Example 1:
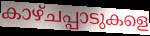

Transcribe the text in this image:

കാഴ്ചപ്പാടുകളെ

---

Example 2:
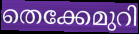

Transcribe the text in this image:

തെക്കേമുറി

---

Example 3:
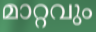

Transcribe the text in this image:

മാറ്റവും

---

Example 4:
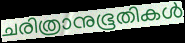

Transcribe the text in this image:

ചരിത്രാനുഭൂതികൾ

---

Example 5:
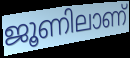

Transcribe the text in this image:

ജൂണിലാണ്